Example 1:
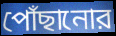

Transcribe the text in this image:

পোঁছানোর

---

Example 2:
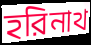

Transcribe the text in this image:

হরিনাথ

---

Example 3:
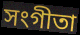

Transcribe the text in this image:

সংগীতা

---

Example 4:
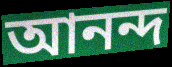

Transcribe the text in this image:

আনন্দ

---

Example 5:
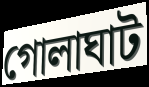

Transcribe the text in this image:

গোলাঘাট